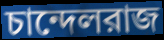
চান্দেলরাজ